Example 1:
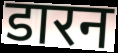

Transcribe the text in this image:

डारन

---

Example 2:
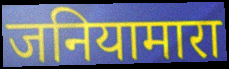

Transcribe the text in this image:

जनियामारा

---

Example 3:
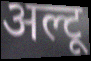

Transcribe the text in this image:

अल्टू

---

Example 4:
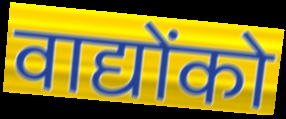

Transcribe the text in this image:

वाद्योंको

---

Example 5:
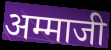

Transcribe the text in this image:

अम्माजी